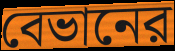
বেভানের